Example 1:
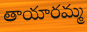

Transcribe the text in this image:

తాయారమ్మ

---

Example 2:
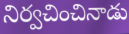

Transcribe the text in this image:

నిర్వచించినాడు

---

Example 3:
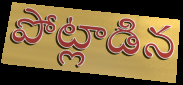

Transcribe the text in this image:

పోట్లాడిన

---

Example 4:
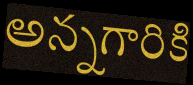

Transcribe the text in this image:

అన్నగారికి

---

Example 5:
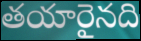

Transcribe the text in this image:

తయారైనది